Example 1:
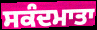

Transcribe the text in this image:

ਸਕੰਦਮਾਤਾ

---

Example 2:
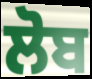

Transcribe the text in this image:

ਲੋਬ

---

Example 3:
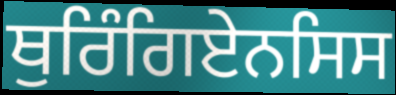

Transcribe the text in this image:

ਥੁਰਿੰਗਿਏਨਸਿਸ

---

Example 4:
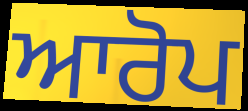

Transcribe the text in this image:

ਆਰੋਪ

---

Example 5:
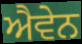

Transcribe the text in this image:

ਐਵੇਨ